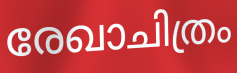
രേഖാചിത്രം